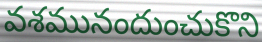
వశమునందుంచుకొని